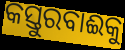
କସ୍ତୁରବାଈକୁ